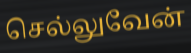
செல்லுவேன்